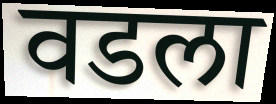
वडला